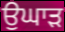
ਉਘਾੜ